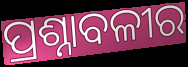
ପ୍ରଶ୍ନାବଳୀର